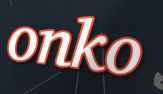
onko